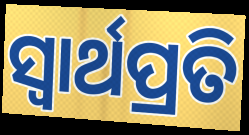
ସ୍ୱାର୍ଥପ୍ରତି